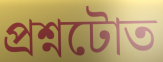
প্ৰশ্নটোত